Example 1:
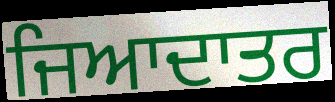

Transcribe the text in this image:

ਜਿਆਦਾਤਰ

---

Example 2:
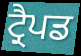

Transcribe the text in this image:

ਟ੍ਰੈਪਡ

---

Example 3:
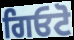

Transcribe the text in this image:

ਗਿਓਟੋ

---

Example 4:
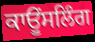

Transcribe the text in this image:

ਕਾਊਂਸਲਿੰਗ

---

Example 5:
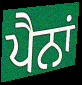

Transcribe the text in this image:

ਪੈਨਾਂ